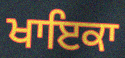
ਖਾਇਕਾ